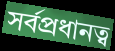
সর্বপ্রধানত্ব